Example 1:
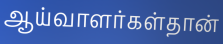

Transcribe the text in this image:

ஆய்வாளர்கள்தான்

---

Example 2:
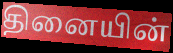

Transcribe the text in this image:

தினையின்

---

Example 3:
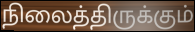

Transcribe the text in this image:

நிலைத்திருக்கும்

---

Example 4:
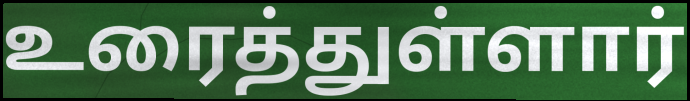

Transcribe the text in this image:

உரைத்துள்ளார்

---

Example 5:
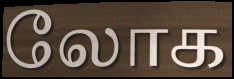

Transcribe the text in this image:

லோக